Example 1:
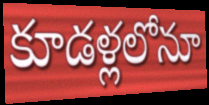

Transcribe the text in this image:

కూడళ్లలోనూ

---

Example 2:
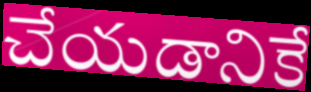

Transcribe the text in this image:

చేయడానికే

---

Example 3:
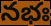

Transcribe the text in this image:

నభః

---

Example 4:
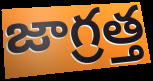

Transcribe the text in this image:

జాగ్రత్త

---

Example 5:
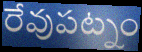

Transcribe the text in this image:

రేవుపట్నం